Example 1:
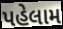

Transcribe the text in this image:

પહેલામ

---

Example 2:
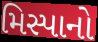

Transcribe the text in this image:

મિસ્પાનો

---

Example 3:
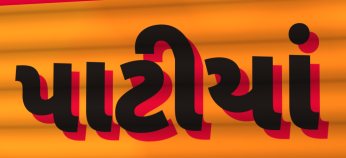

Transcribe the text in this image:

પાટીયાં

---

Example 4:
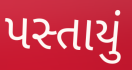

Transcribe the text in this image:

પસ્તાયું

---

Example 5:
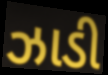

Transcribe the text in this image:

ઝાડી